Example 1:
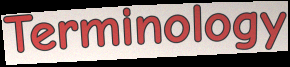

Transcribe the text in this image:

Terminology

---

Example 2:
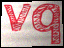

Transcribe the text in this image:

vq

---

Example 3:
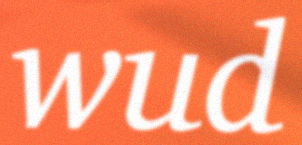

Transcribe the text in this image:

wud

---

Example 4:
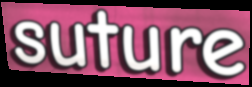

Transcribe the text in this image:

suture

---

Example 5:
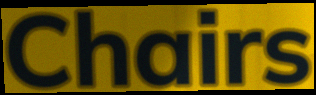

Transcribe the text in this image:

Chairs